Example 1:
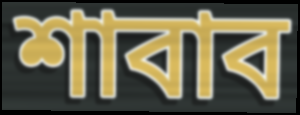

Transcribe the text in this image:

শাবাব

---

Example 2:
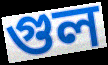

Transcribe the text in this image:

গুল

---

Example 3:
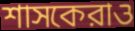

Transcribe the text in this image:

শাসকেরাও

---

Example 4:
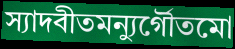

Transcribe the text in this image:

স্যাদবীতমন্যুর্গৌতমো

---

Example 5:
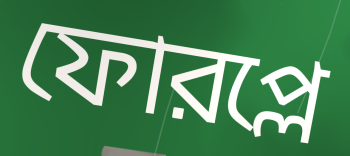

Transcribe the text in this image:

ফোরপ্লে